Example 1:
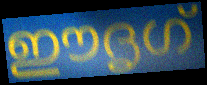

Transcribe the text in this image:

ഈദൃഗ്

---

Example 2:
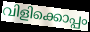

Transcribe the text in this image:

വിളിക്കൊപ്പം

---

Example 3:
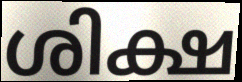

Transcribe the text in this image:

ശിക്ഷ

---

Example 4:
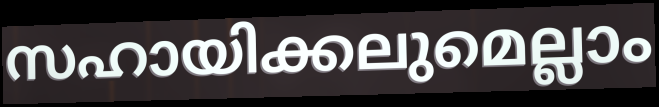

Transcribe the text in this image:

സഹായിക്കലുമെല്ലാം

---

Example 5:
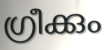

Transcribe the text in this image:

ഗ്രീക്കും